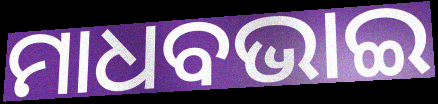
ମାଧବଭାଇ